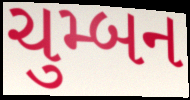
ચુમ્બન